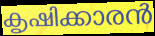
കൃഷിക്കാരൻ